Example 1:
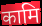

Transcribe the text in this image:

कामि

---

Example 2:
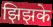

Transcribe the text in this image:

झिझके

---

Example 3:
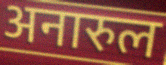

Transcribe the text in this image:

अनारुल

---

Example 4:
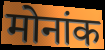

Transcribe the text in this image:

मोनांक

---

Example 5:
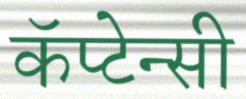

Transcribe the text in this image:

कॅप्टेन्सी